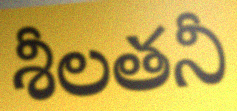
శీలతనీ